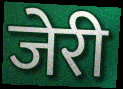
जेरी